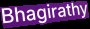
Bhagirathy